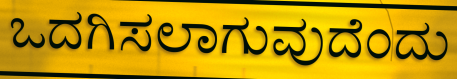
ಒದಗಿಸಲಾಗುವುದೆಂದು